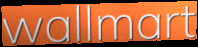
wallmart